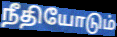
நீதியோடும்